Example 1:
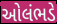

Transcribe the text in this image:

ઓલંભડે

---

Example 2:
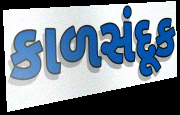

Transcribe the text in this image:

કાળસંદૂક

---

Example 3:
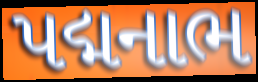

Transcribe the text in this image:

પદ્મનાભ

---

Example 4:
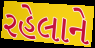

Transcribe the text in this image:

રહેલાને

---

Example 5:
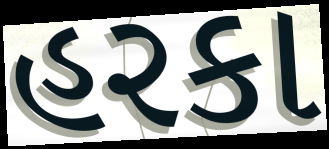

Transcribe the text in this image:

હરકા